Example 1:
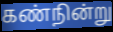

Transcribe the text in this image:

கண்நின்று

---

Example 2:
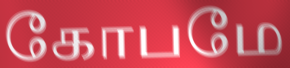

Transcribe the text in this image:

கோபமே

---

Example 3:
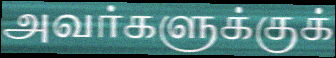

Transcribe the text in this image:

அவர்களுக்குக்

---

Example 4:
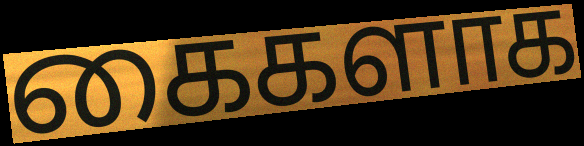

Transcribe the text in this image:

கைகளாக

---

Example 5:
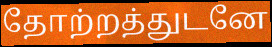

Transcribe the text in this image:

தோற்றத்துடனே